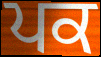
ਪਕ